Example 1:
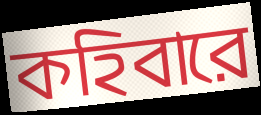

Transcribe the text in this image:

কহিবারে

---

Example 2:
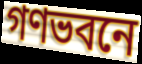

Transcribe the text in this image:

গণভবনে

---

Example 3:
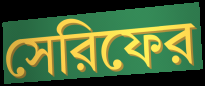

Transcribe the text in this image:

সেরিফের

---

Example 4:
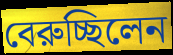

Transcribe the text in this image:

বেরুচ্ছিলেন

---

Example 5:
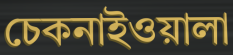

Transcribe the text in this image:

চেকনাইওয়ালা